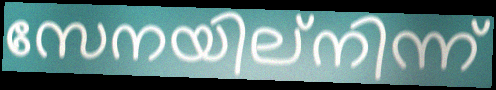
സേനയില്നിന്ന്